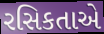
રસિકતાએ